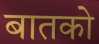
बातको